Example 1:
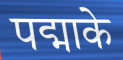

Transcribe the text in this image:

पद्माके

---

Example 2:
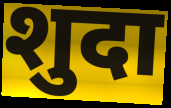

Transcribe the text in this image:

शुदा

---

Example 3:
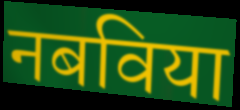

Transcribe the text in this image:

नबविया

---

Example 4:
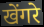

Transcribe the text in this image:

खेंगरे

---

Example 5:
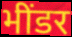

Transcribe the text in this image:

भींडर